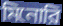
মিনোরি